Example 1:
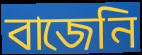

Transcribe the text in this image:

বাজেনি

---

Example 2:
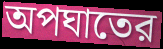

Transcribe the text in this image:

অপঘাতের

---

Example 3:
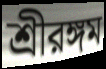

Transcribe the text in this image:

শ্রীরঙ্গম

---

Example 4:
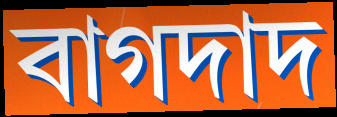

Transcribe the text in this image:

বাগদাদ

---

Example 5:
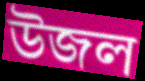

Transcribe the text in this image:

উজল